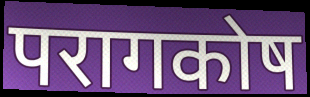
परागकोष